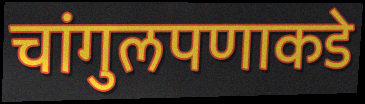
चांगुलपणाकडे